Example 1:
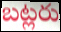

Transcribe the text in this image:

బట్లరు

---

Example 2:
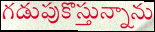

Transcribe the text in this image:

గడుపుకొస్తున్నాను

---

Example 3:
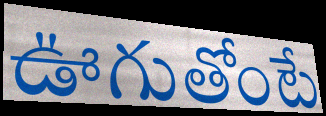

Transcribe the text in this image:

ఊగుతోంటే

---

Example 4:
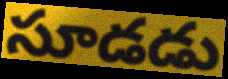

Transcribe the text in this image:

సూడడు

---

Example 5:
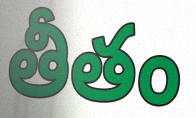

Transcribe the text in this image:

తీతం